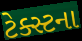
ટેક્સ્ટના